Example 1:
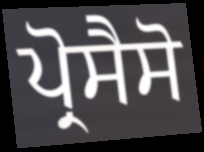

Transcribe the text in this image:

ਪ੍ਰੋਸੈਸੋ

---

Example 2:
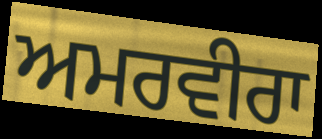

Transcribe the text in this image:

ਅਮਰਵੀਰਾ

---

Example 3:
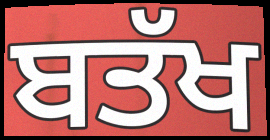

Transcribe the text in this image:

ਬਤੱਖ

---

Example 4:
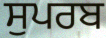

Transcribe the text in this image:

ਸੁਪਰਬ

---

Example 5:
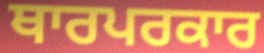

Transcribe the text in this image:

ਥਾਰਪਰਕਾਰ